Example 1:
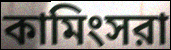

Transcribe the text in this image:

কামিংসরা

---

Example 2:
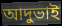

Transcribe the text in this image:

আদুভাই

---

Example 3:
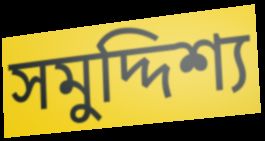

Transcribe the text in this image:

সমুদ্দিশ্য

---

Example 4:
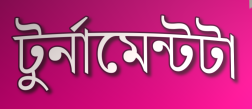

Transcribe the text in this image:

টুর্নামেন্টটা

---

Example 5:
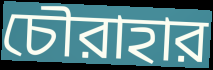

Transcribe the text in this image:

চৌরাহার